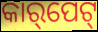
କାର୍‌ପେଟ୍